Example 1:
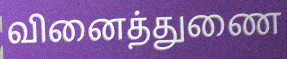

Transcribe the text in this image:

வினைத்துணை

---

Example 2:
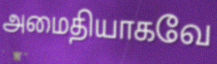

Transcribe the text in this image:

அமைதியாகவே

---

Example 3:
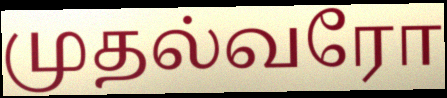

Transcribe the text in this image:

முதல்வரோ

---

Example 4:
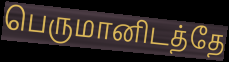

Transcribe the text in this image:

பெருமானிடத்தே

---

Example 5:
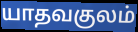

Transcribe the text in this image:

யாதவகுலம்